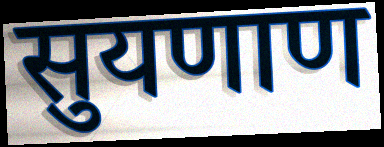
सुयणाण